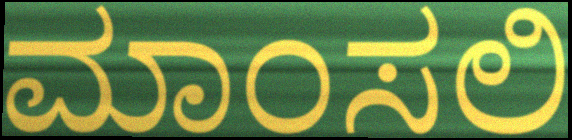
ಮಾಂಸಲಿ